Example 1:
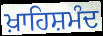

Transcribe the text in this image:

ਖ਼ਾਹਿਸ਼ਮੰਦ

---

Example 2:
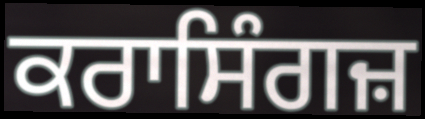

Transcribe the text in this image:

ਕਰਾਸਿੰਗਜ਼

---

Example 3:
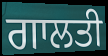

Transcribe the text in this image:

ਗਾਲਤੀ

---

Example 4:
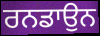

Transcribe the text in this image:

ਰਨਡਾਉਨ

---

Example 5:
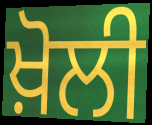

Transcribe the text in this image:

ਖ਼ੋਲੀ